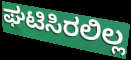
ಘಟಿಸಿರಲಿಲ್ಲ